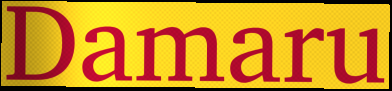
Damaru